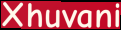
Xhuvani